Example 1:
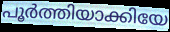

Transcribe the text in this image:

പൂർത്തിയാക്കിയേ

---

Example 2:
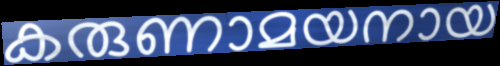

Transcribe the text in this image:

കരുണാമയനായ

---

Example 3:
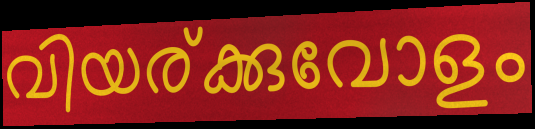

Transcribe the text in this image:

വിയര്ക്കുവോളം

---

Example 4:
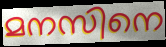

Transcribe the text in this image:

മനസിനെ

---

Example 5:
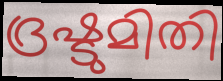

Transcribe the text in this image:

ദ്രഷ്ടുമിതി